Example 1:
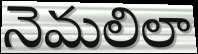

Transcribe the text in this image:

నెమలిలా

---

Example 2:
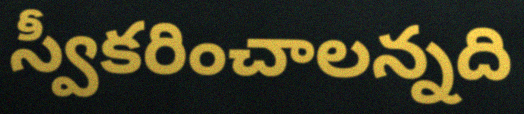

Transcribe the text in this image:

స్వీకరించాలన్నది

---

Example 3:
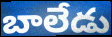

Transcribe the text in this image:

బాలేడు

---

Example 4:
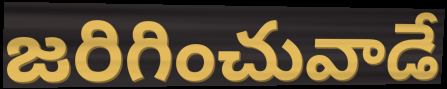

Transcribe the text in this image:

జరిగించువాడే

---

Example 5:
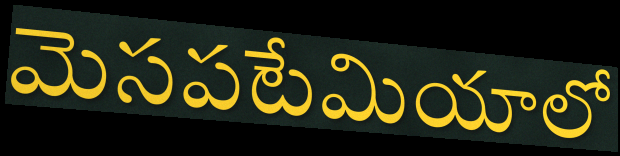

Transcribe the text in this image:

మెసపటేమియాలో